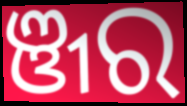
ଞ୍ଜର